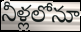
నీళ్లలోనూ